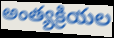
అంత్యక్రియల